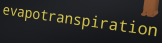
evapotranspiration